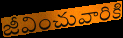
జీవించువారికి